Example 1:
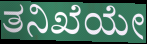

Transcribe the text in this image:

ತನಿಖೆಯೇ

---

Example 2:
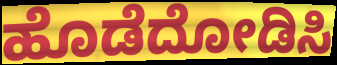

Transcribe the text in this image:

ಹೊಡೆದೋಡಿಸಿ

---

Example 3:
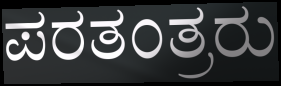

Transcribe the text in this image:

ಪರತಂತ್ರರು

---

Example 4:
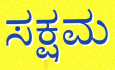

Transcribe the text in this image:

ಸಕ್ಷಮ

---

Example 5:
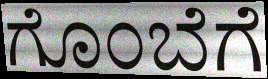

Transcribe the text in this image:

ಗೊಂಬೆಗೆ